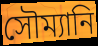
সৌম্যানি